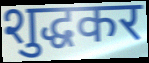
शुद्धकर